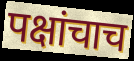
पक्षांचाच